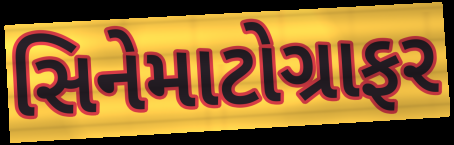
સિનેમાટોગ્રાફર